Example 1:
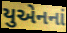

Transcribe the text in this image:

યુએનનાં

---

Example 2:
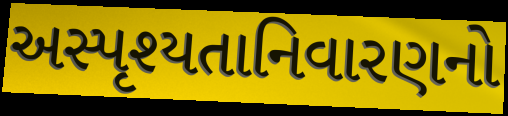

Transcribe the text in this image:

અસ્પૃશ્યતાનિવારણનો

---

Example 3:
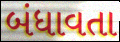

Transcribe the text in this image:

બંધાવતા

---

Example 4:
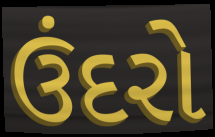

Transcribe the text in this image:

ઉંદરો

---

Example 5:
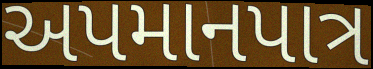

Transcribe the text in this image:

અપમાનપાત્ર